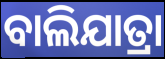
ବାଲିଯାତ୍ରା